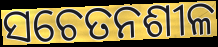
ସଚେତନଶୀଳ